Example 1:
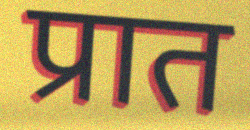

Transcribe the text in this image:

प्रात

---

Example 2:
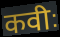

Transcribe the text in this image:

कवीः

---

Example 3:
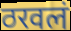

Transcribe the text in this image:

ठरवलं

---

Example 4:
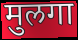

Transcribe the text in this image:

मुलगा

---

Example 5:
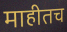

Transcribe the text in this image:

माहीतच